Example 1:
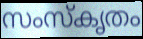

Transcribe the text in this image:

സംസ്കൃതം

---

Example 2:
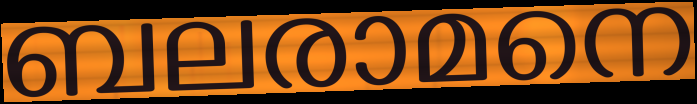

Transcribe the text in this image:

ബലരാമനെ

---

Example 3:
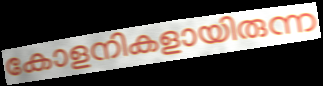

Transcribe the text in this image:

കോളനികളായിരുന്ന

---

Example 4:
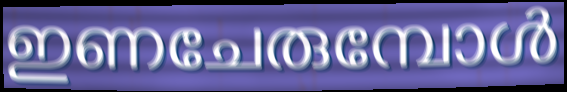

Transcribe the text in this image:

ഇണചേരുമ്പോൾ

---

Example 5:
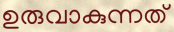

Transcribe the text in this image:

ഉരുവാകുന്നത്